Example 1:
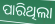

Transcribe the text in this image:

ପାରିଥିଲା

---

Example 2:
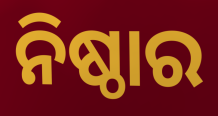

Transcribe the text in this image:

ନିଷ୍ଠାର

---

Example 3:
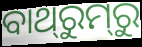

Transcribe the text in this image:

ବାଥ୍‌ରୁମ୍‌ରୁ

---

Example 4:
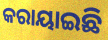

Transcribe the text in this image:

କରାୟାଇଛି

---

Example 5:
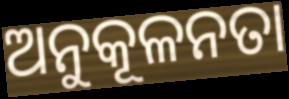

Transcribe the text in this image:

ଅନୁକୂଳନତା